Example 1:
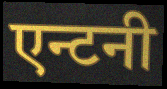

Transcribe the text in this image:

एन्टनी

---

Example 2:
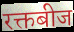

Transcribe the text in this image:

रक्तबीज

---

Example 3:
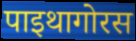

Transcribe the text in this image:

पाइथागोरस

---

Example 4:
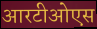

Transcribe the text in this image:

आरटीओएस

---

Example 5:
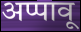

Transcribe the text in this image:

अप्पावू